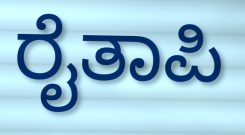
ರೈತಾಪಿ